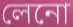
লেনো